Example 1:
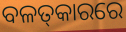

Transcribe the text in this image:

ବଳତ୍‌କାରରେ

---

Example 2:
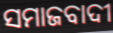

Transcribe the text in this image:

ସମାଜବାଦୀ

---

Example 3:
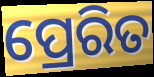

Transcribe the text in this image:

ପ୍ରେରିତ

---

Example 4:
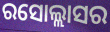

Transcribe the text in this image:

ରସୋଲ୍ଲାସର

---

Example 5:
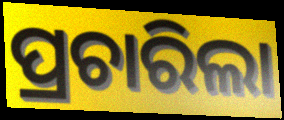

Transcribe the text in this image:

ପ୍ରଚାରିଲା